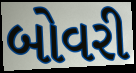
બોવરી